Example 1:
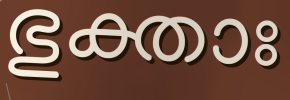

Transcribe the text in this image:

ഭുക്താഃ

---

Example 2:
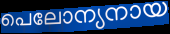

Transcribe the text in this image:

പെലോന്യനായ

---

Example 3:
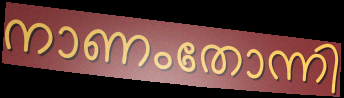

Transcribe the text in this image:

നാണംതോന്നി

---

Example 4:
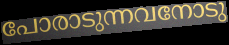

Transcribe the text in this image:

പോരാടുന്നവനോടു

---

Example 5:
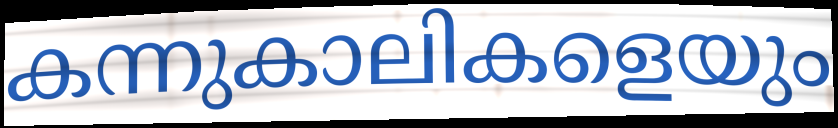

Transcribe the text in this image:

കന്നുകാലികളെയും